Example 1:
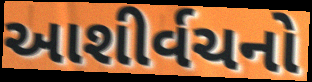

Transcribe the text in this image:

આશીર્વચનો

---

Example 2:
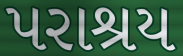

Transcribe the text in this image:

પરાશ્રય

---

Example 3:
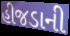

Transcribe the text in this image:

હીજડાની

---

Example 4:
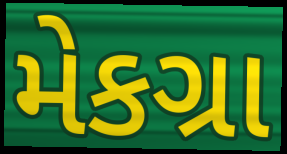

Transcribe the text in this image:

મેકગ્રા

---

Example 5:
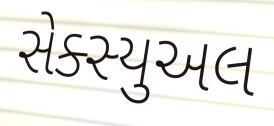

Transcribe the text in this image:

સેક્સ્યુઅલ